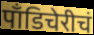
पाँडिचेरीचं